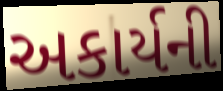
અકાર્યની